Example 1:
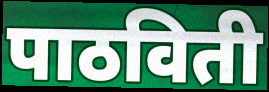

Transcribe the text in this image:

पाठविती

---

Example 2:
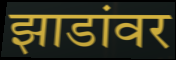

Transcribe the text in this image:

झाडांवर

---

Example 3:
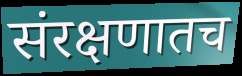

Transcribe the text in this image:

संरक्षणातच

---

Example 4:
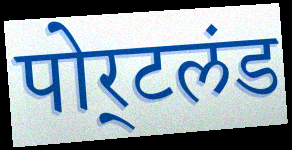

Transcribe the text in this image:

पोर्टलंड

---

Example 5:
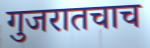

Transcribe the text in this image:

गुजरातचाच